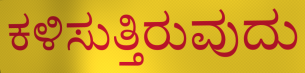
ಕಳಿಸುತ್ತಿರುವುದು